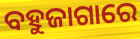
ବହୁଜାଗାରେ